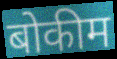
बोकीम